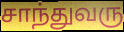
சாந்துவரு